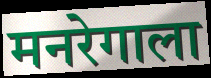
मनरेगाला